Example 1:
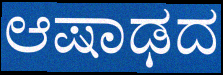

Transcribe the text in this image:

ಆಷಾಢದ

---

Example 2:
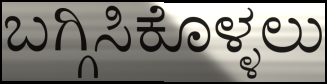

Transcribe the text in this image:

ಬಗ್ಗಿಸಿಕೊಳ್ಳಲು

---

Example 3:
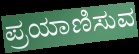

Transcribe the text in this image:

ಪ್ರಯಾಣಿಸುವ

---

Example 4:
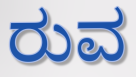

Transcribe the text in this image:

ರುವ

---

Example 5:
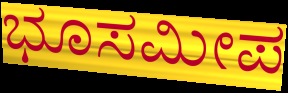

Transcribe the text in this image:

ಭೂಸಮೀಪ